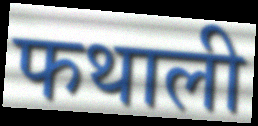
फथाली